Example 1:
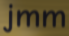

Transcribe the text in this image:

jmm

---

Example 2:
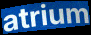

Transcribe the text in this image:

atrium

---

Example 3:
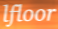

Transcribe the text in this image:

lfloor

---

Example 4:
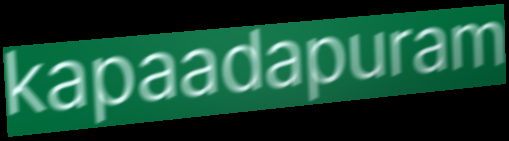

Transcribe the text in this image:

kapaadapuram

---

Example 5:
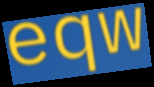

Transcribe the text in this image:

eqw